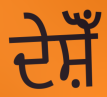
ਦੇਸ਼ੋਁ